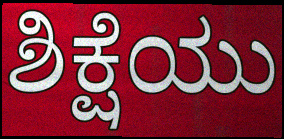
ಶಿಕ್ಷೆಯು